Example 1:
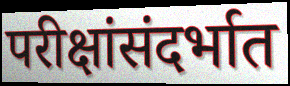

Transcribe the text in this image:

परीक्षांसंदर्भात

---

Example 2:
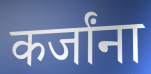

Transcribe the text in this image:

कर्जांना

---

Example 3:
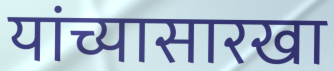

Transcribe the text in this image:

यांच्यासारखा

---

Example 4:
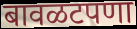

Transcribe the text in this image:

बावळटपणा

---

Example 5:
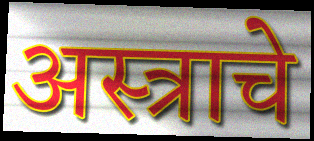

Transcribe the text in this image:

अस्त्राचे